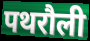
पथरौली